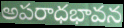
అపరాధభావన